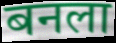
बनला